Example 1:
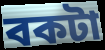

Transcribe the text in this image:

বকটা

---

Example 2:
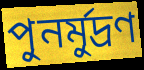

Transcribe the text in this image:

পুনর্মুদ্রণ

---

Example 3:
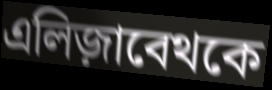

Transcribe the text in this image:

এলিজ়াবেথকে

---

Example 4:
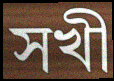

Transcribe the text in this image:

সখী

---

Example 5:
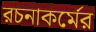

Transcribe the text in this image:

রচনাকর্মের